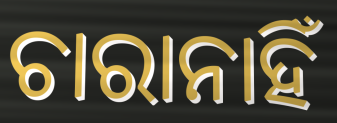
ଚାରାନାହିଁ